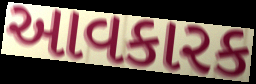
આવકારક